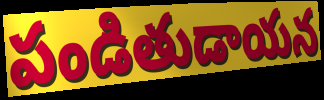
పండితుడాయన